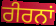
ਰੀਰਨਾਂ